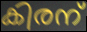
കിരന്